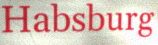
Habsburg